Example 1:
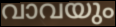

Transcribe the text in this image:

വാവയും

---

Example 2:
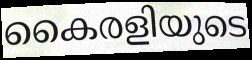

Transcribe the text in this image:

കൈരളിയുടെ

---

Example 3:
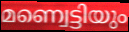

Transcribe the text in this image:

മണ്വെട്ടിയും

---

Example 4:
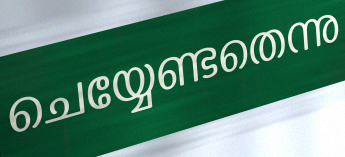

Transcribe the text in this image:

ചെയ്യേണ്ടതെന്നു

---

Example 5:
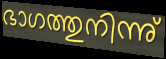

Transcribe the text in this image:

ഭാഗത്തുനിന്നു്